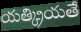
యత్క్రియతే